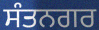
ਸੰਤਨਗਰ